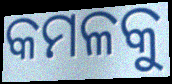
କମଳକୁ